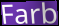
Farb